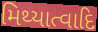
મિથ્યાત્વાદિ